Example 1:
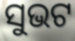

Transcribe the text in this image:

ସୁଭଟ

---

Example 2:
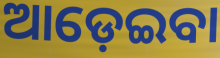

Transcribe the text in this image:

ଆଡ଼େଇବା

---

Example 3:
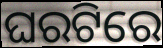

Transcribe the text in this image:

ଘରଟିରେ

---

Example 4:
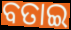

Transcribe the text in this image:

ବତାଇ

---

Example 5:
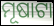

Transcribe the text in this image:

ମୂଷାଟା